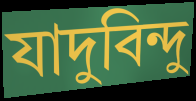
যাদুবিন্দু